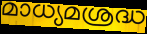
മാധ്യമശ്രദ്ധ